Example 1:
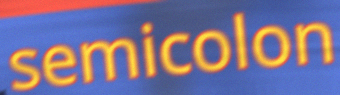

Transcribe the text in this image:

semicolon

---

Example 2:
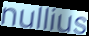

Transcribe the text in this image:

nullius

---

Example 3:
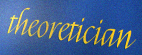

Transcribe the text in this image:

theoretician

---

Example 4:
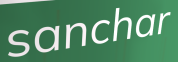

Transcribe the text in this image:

sanchar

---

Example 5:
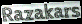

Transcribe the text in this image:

Razakars